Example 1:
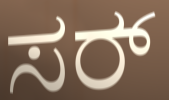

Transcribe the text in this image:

ಸರ‍್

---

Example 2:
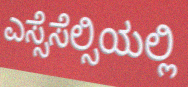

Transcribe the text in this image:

ಎಸ್ಸೆಸೆಲ್ಸಿಯಲ್ಲಿ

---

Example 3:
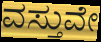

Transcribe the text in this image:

ವಸ್ತುವೇ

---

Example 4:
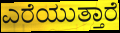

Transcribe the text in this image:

ಎರೆಯುತ್ತಾರೆ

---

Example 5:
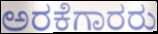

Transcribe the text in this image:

ಅರಕೆಗಾರರು